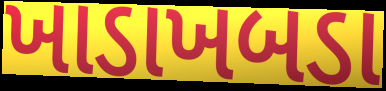
ખાડાખબડા